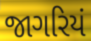
જાગરિયં